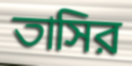
তাসির